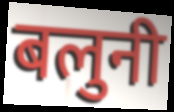
बलुनी